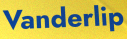
Vanderlip